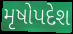
મૃષોપદેશ